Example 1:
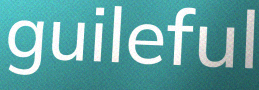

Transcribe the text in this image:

guileful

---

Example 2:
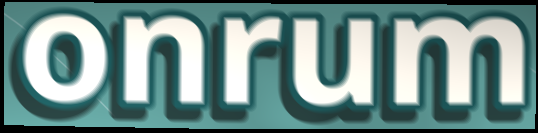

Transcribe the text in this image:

onrum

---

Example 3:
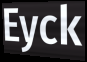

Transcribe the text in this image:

Eyck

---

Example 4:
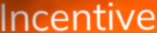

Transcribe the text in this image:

Incentive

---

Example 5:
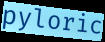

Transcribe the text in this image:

pyloric